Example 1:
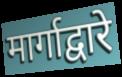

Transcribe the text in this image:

मार्गाद्वारे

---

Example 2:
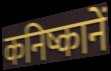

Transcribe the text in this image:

कनिष्कानें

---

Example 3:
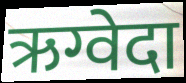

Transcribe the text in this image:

ऋग्वेदा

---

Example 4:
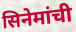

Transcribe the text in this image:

सिनेमांची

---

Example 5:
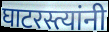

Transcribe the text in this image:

घाटरस्त्यांनी